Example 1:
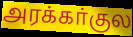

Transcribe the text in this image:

அரக்கர்குல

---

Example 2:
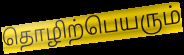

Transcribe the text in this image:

தொழிற்பெயரும்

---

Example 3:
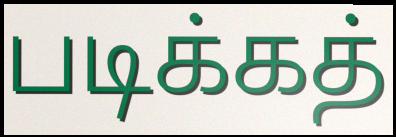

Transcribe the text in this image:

படிக்கத்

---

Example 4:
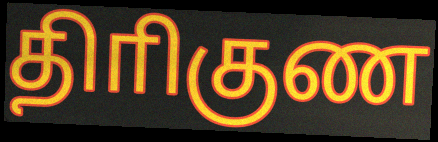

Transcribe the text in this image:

திரிகுண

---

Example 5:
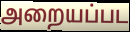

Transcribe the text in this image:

அறையப்பட